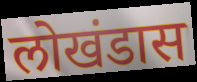
लोखंडास